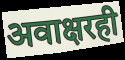
अवाक्षरही